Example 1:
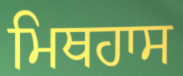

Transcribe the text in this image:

ਮਿਥਹਾਸ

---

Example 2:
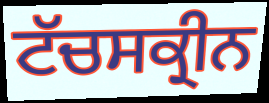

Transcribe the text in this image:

ਟੱਚਸਕ੍ਰੀਨ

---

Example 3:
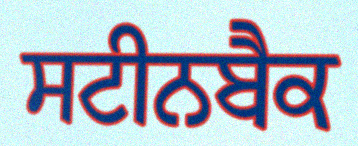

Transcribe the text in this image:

ਸਟੀਨਬੈਕ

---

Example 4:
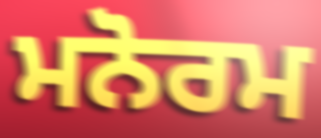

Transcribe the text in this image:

ਮਨੋਰਮ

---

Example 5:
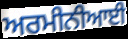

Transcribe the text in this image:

ਅਰਮੀਨੀਆਈ